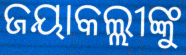
ଜୟାକଲ୍ଲୀଙ୍କୁ